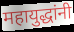
महायुद्धांनी